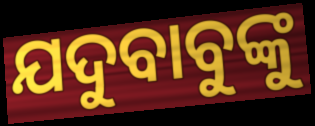
ଯଦୁବାବୁଙ୍କୁ